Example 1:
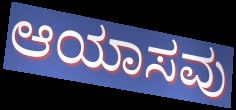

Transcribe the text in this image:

ಆಯಾಸವು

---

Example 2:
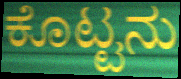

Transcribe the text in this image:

ಕೊಟ್ಟನು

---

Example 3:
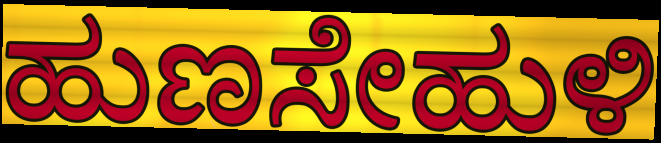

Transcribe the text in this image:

ಹುಣಸೇಹುಳಿ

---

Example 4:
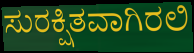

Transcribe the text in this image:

ಸುರಕ್ಷಿತವಾಗಿರಲಿ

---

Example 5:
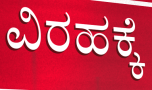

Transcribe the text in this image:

ವಿರಹಕ್ಕೆ